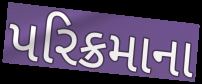
પરિક્રમાના